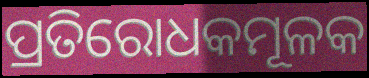
ପ୍ରତିରୋଧକମୂଳକ